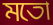
মতো